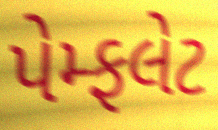
પેમ્ફલેટ